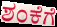
ಶಂಕೆಗೆ